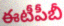
ఈటీపీబీ